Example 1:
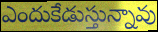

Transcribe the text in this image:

ఎందుకేడుస్తున్నావు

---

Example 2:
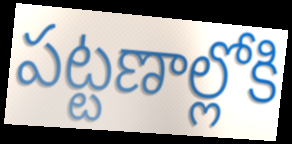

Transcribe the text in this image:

పట్టణాల్లోకి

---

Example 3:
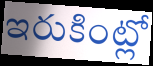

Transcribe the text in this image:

ఇరుకింట్లో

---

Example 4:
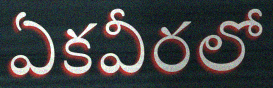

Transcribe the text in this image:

ఏకవీరలో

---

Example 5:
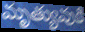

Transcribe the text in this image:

మృత్యువుకి